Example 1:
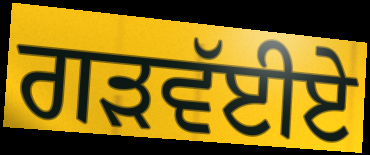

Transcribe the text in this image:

ਗੜਵੱਈਏ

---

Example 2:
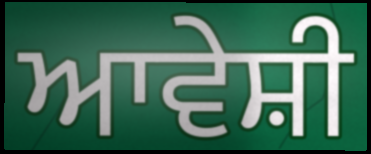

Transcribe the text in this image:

ਆਵੇਸ਼ੀ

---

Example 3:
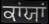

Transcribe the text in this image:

ਕਾਂਯਾਂ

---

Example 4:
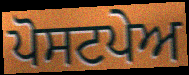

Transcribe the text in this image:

ਪੋਸਟਪੇਅ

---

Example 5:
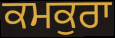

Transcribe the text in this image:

ਕਮਕੁਰਾ